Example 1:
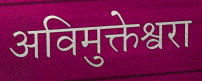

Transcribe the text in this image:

अविमुक्तेश्वरा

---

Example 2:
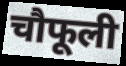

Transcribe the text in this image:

चौफूली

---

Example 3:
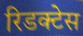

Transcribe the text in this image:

रिडक्टेस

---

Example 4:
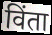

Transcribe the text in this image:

विंता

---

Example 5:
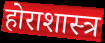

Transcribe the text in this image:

होराशास्त्र